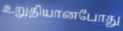
உறுதியானபோது